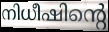
നിധീഷിന്റെ